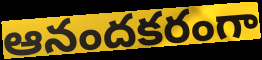
ఆనందకరంగా